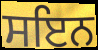
ਸਇਨ